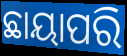
ଛାୟାପରି